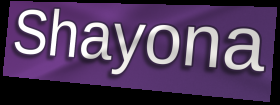
Shayona